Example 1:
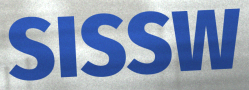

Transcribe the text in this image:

SISSW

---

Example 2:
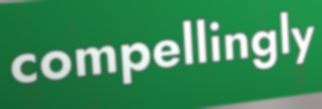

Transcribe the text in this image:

compellingly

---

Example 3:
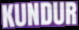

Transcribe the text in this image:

KUNDUR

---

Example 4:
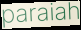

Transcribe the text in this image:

paraiah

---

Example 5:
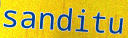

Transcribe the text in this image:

sanditu